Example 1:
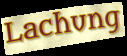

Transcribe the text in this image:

Lachung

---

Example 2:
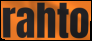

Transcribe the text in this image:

rahto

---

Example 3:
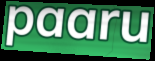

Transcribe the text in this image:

paaru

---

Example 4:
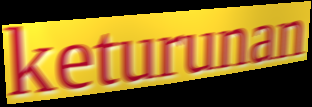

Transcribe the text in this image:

keturunan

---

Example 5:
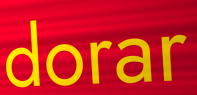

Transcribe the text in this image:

dorar